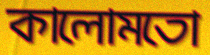
কালোমতো